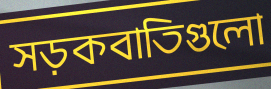
সড়কবাতিগুলো